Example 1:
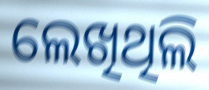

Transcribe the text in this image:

ଲେଖିଥିଲି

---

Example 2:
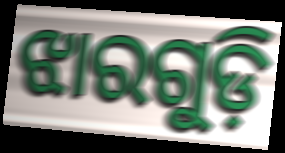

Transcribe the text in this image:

ଝାରଗୁଡ଼ି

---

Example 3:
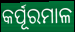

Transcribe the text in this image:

କର୍ପୂରମାଳ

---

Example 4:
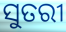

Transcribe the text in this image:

ସୁତରୀ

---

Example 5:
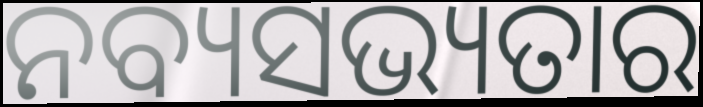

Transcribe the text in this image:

ନବ୍ୟସଭ୍ୟତାର